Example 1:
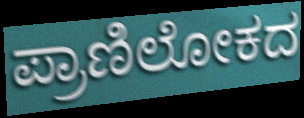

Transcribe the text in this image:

ಪ್ರಾಣಿಲೋಕದ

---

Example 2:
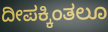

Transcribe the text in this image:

ದೀಪಕ್ಕಿಂತಲೂ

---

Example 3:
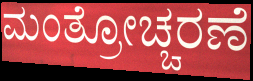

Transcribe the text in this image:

ಮಂತ್ರೋಚ್ಚರಣೆ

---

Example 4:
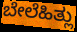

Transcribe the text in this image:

ಬೇಲೆಹಿತ್ಲು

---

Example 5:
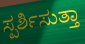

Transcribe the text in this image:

ಸ್ಪರ್ಶಿಸುತ್ತಾ